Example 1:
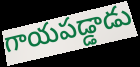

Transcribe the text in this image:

గాయపడ్డాడు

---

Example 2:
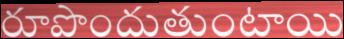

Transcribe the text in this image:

రూపొందుతుంటాయి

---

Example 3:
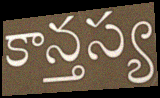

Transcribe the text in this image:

కాన్తస్య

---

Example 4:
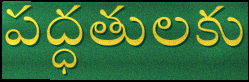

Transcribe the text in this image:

పద్ధతులకు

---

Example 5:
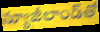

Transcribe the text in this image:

న్యూజీలాండ్‌తో